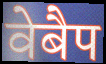
वेबैप